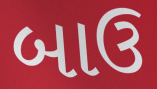
બાઉ